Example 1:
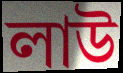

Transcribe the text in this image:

লাউ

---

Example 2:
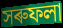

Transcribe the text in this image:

সৰুফলা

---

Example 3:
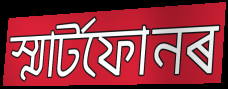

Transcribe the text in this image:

স্মাৰ্টফোনৰ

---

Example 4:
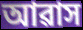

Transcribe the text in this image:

আৱাস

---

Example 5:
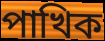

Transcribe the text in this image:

পাখিক